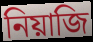
নিয়াজি